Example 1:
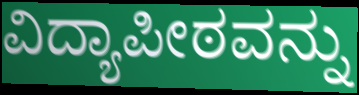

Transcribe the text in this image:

ವಿದ್ಯಾಪೀಠವನ್ನು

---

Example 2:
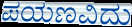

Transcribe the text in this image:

ಪಯಣವಿದು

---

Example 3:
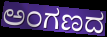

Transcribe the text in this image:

ಅಂಗಣದ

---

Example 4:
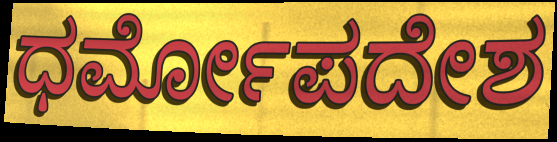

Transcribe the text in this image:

ಧರ್ಮೋಪದೇಶ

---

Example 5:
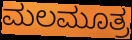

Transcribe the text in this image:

ಮಲಮೂತ್ರ